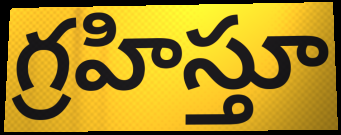
గ్రహిస్తూ